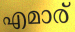
എമാര്